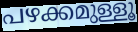
പഴക്കമുള്ളൂ